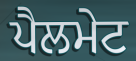
ਪੈਲਮੇਟ